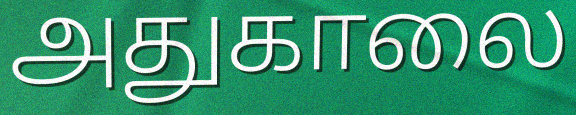
அதுகாலை